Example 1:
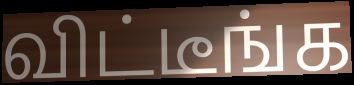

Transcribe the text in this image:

விட்டீங்க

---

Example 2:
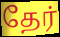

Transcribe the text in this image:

தேர்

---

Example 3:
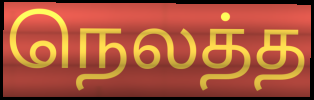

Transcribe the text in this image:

நெலத்த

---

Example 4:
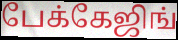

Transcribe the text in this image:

பேக்கேஜிங்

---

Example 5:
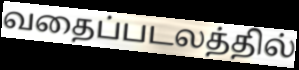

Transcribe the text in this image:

வதைப்படலத்தில்